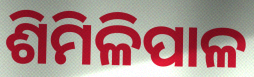
ଶିମିଳିପାଳ